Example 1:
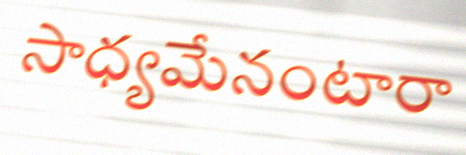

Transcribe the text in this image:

సాధ్యమేనంటారా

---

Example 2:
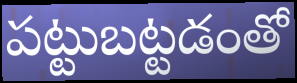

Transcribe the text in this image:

పట్టుబట్టడంతో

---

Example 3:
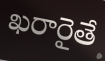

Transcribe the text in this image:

ఖరారైతే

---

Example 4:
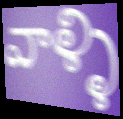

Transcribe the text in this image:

వాళ్ళి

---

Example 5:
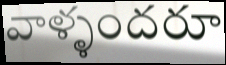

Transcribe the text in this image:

వాళ్ళందరూ